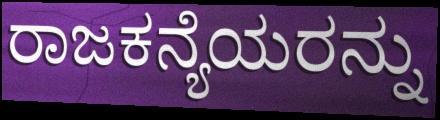
ರಾಜಕನ್ಯೆಯರನ್ನು